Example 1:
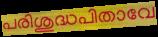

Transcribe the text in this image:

പരിശുദ്ധപിതാവേ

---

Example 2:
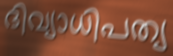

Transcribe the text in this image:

ദിവ്യാധിപത്യ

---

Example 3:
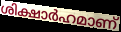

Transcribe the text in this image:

ശിക്ഷാർഹമാണ്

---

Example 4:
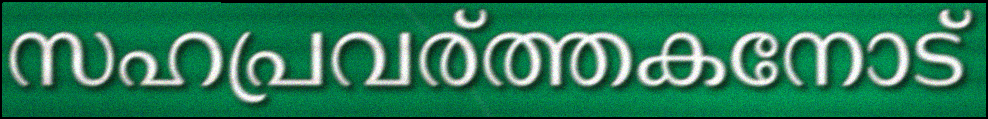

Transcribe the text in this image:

സഹപ്രവര്ത്തകനോട്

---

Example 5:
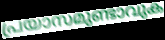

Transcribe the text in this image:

പ്രയാസമുണ്ടാവുക